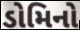
ડોમિનો